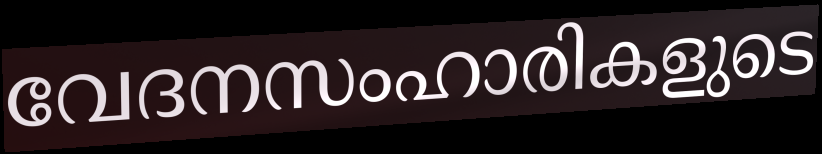
വേദനസംഹാരികളുടെ